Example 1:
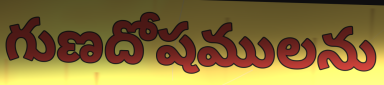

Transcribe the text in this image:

గుణదోషములను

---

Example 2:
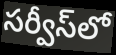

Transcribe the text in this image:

సర్వీస్‌లో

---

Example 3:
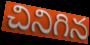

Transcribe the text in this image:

చినిగిన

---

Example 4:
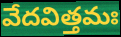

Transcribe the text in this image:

వేదవిత్తమః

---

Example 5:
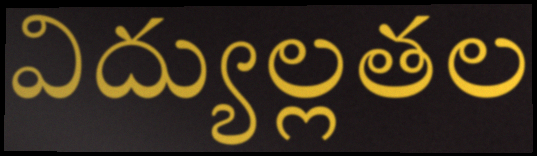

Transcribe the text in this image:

విద్యుల్లతల